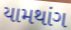
યામથાંગ